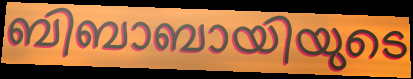
ബിബാബായിയുടെ